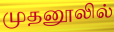
முதனூலில்